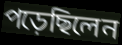
পড়েছিলেন